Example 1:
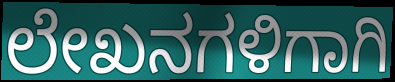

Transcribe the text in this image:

ಲೇಖನಗಳಿಗಾಗಿ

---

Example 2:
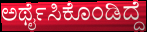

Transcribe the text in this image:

ಅರ್ಥೈಸಿಕೊಂಡಿದ್ದೆ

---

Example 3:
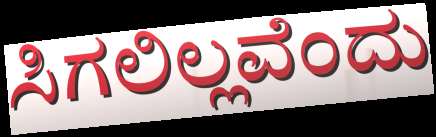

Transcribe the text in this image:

ಸಿಗಲಿಲ್ಲವೆಂದು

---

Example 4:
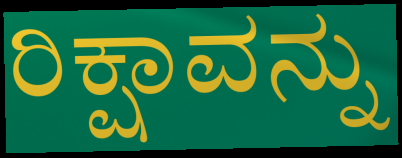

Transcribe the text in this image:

ರಿಕ್ಷಾವನ್ನು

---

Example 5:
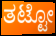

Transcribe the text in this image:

ತಟ್ಟೋ